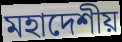
মহাদেশীয়